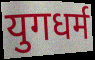
युगधर्म